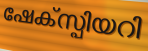
ഷേക്സ്പിയറി